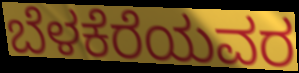
ಬೆಳಕೆರೆಯವರ